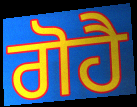
ਗੋਹੈ